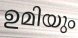
ഉമിയും